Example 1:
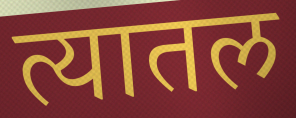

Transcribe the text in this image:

त्यातल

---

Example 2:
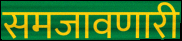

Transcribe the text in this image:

समजावणारी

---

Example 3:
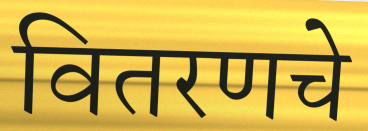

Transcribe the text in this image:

वितरणचे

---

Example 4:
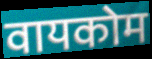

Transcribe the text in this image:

वायकोम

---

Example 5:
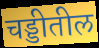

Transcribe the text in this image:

चड्डीतील